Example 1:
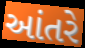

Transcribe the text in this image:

આંતરે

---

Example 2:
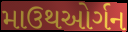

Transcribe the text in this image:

માઉથઓર્ગન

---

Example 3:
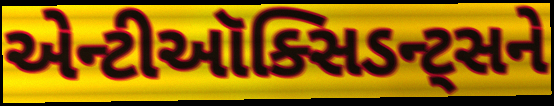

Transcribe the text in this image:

એન્ટીઑક્સિડન્ટ્સને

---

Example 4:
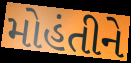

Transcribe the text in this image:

મોહંતીને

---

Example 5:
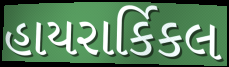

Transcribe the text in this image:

હાયરાર્કિકલ